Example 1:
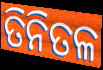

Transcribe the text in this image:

ତିନିତଳ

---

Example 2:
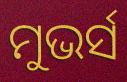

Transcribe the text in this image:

ମୁଭର୍ସ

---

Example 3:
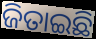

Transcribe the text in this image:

ଜିତାଇଛି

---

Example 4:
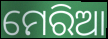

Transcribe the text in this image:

ମେରିଆ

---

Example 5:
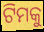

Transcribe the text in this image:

ଟିମକୁ